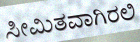
ಸೀಮಿತವಾಗಿರಲಿ